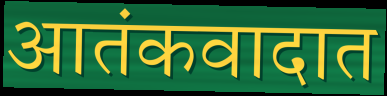
आतंकवादात